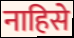
नाहिसे